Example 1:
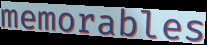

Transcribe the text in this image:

memorables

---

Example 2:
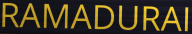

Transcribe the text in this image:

RAMADURAI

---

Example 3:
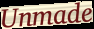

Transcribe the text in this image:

Unmade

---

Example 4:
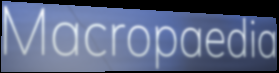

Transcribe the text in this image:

Macropaedia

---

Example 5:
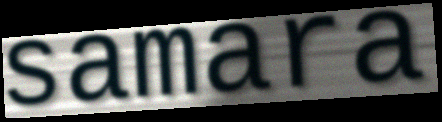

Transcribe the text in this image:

samara